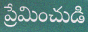
ప్రేమించుడి